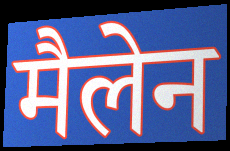
मैलेन